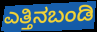
ಎತ್ತಿನಬಂಡಿ